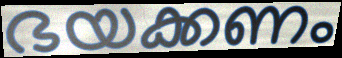
ഭയക്കണം